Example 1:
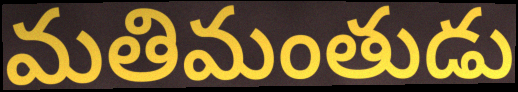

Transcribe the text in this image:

మతిమంతుడు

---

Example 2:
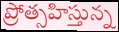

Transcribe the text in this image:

ప్రోత్సహిస్తున్న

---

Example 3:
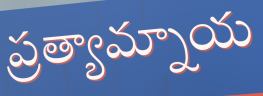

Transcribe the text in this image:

ప్రత్యామ్నాయ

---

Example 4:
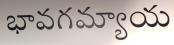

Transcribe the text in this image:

భావగమ్యాయ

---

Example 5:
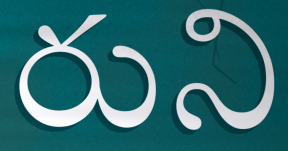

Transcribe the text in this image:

రుని